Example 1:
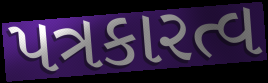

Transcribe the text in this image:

પત્રકારત્વ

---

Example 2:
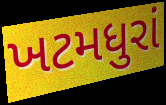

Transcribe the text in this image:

ખટમધુરાં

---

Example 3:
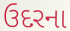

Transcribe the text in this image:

ઉદરના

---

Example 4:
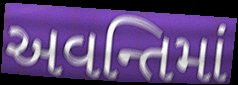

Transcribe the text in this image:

અવન્તિમાં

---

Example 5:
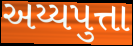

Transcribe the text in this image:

અય્યપુત્તા